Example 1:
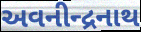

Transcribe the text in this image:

અવનીન્દ્રનાથ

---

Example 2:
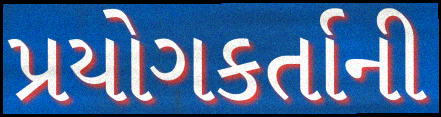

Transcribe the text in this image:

પ્રયોગકર્તાની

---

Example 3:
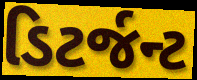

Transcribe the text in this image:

ડિટર્જન્ટ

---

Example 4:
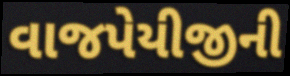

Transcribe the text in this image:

વાજપેયીજીની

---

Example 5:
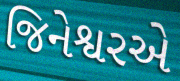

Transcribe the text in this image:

જિનેશ્વરએ